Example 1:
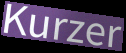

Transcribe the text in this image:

Kurzer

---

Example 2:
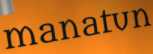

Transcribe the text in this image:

manatun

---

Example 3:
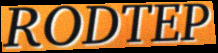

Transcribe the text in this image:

RODTEP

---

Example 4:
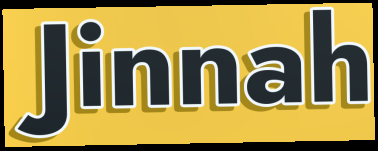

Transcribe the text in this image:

Jinnah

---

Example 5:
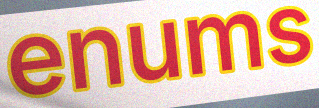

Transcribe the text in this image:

enums